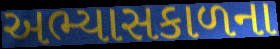
અભ્યાસકાળના